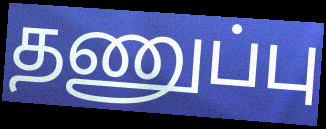
தணுப்பு